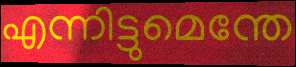
എന്നിട്ടുമെന്തേ